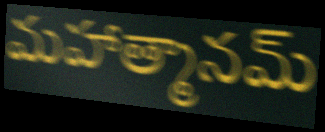
మహాత్మానమ్